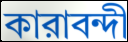
কারাবন্দী